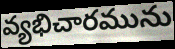
వ్యభిచారమును